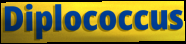
Diplococcus